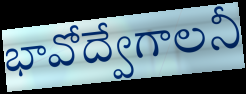
భావోద్వేగాలనీ